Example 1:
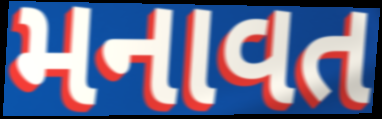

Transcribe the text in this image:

મનાવત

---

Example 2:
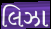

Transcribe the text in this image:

લિઝા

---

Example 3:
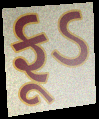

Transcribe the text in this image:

ફૂડ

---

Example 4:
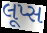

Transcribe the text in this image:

લૂપ્સ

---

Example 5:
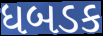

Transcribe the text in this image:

ધબડક